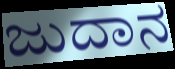
ಜುದಾನ